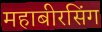
महाबीरसिंग